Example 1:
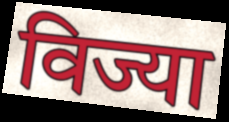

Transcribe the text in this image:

विज्या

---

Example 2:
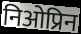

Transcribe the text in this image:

निओप्रिन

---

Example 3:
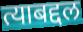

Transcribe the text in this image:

त्याबद्दल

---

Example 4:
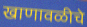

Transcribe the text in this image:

खाणावळीचे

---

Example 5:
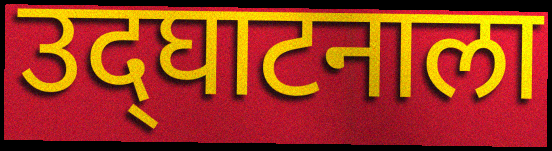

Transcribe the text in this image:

उद्घाटनाला